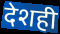
देशही